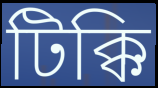
টিক্কি